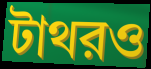
টাথরও